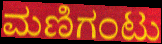
ಮಣಿಗಂಟು